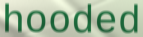
hooded